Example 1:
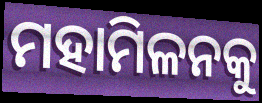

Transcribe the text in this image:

ମହାମିଳନକୁ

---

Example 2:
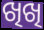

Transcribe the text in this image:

ଖିଖି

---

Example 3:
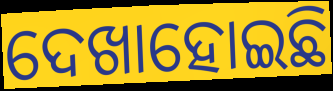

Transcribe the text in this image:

ଦେଖାହୋଇଛି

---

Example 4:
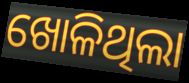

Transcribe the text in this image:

ଖୋଳିଥିଲା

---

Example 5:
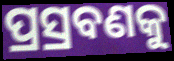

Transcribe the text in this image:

ପ୍ରସ୍ରବଣକୁ